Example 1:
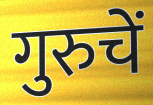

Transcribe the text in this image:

गुरुचें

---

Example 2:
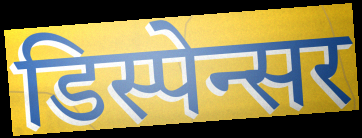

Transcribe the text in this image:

डिस्पेन्सर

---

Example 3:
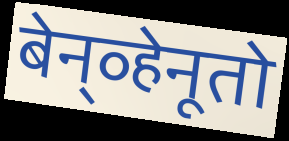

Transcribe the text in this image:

बेन्‌व्हेनूतो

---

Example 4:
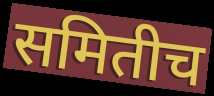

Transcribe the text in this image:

समितीच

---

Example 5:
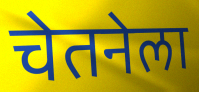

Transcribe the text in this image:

चेतनेला